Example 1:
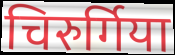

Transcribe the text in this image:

चिरुर्गिया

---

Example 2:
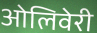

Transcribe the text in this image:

ओलिवेरी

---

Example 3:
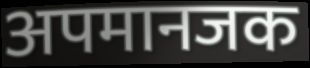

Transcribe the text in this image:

अपमानजक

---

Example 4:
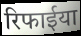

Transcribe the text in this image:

रिफाईया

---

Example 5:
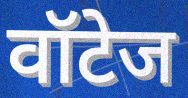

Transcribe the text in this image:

वॉटेज